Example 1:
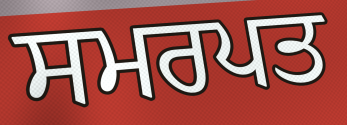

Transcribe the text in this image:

ਸਮਰਪਤ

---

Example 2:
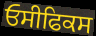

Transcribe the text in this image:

ਓਸੀਫਿਕਸ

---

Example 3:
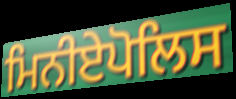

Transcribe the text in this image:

ਮਿਨੀਏਪੋਲਿਸ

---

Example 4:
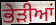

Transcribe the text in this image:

ਭੇੜੀਆਂ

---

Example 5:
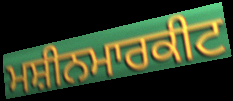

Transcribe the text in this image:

ਮਸ਼ੀਨਮਾਰਕੀਟ